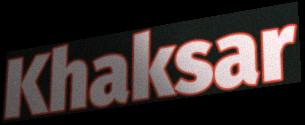
Khaksar